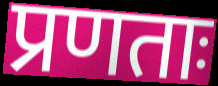
प्रणताः